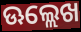
ଊଲ୍ଲେଖ